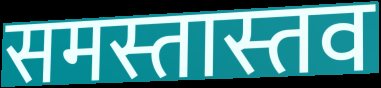
समस्तास्तव